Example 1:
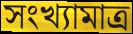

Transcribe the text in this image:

সংখ্যামাত্র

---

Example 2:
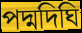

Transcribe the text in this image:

পদ্মদিঘি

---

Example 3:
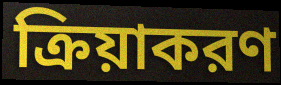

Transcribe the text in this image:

ক্রিয়াকরণ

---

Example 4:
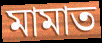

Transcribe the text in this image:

মামাত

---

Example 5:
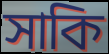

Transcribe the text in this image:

সাকি